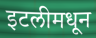
इटलीमधून